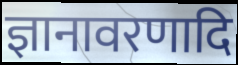
ज्ञानावरणादि